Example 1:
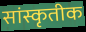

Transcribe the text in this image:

सांस्कृतीक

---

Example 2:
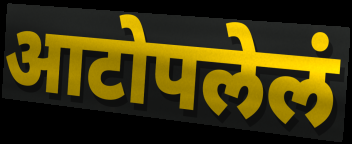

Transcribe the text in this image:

आटोपलेलं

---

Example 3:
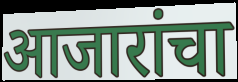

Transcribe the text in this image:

आजारांचा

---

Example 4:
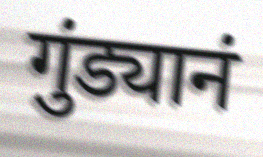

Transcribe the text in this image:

गुंड्यानं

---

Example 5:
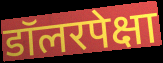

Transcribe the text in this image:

डॉलरपेक्षा